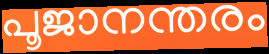
പൂജാനന്തരം